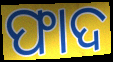
ଫାଦ